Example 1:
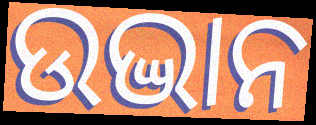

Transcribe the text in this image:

ଉଦ୍ଭାନ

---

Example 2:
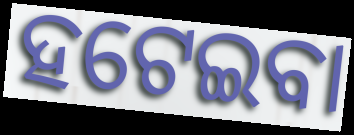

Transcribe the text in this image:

ହଟେଇବା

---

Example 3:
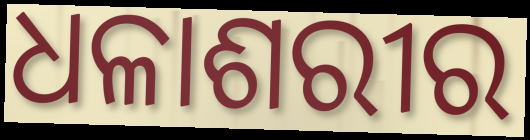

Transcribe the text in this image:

ଧଳାଶରୀର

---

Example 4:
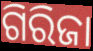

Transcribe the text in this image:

ଗିରିଜା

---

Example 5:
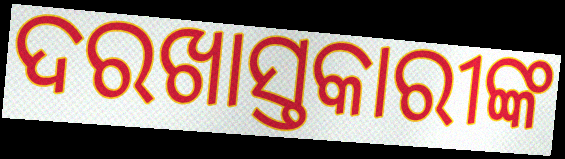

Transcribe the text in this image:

ଦରଖାସ୍ତକାରୀଙ୍କ